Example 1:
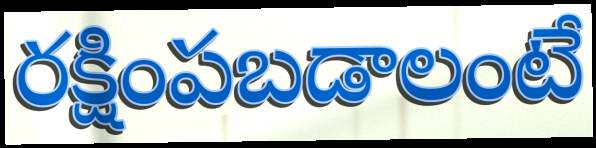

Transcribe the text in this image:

రక్షింపబడాలంటే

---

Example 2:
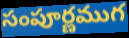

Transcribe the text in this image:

సంపూర్ణముగ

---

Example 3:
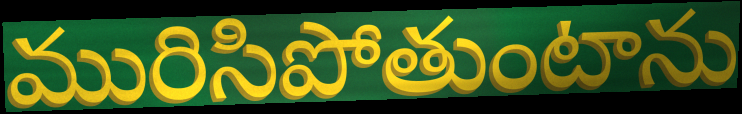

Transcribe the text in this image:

మురిసిపోతుంటాను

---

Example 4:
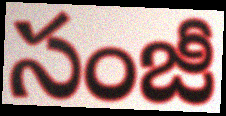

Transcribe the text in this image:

సంజీ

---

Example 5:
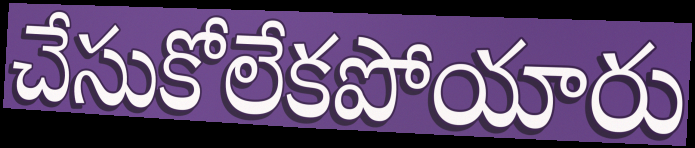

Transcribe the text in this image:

చేసుకోలేకపోయారు